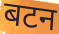
बटन